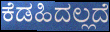
ಕೆಡಹಿದಲ್ಲದೆ